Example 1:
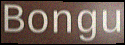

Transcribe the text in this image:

Bongu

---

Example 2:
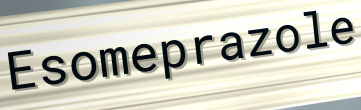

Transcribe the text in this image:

Esomeprazole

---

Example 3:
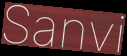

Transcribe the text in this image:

Sanvi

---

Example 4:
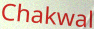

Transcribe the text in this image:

Chakwal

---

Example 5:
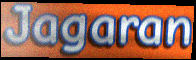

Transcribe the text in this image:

Jagaran